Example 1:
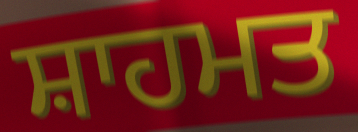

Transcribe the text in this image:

ਸ਼ਾਹਮਤ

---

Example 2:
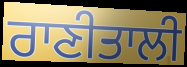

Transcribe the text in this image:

ਰਾਣੀਤਾਲੀ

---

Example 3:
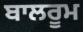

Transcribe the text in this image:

ਬਾਲਰੂਮ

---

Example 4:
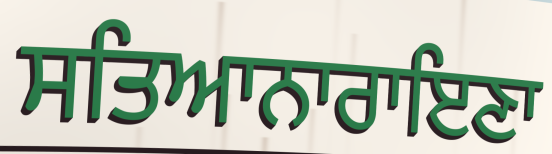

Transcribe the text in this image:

ਸਤਿਆਨਾਰਾਇਣਾ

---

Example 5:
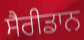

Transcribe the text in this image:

ਸੈਰੀਡਾਨ